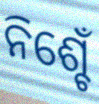
ନିଶ୍ଚେଁ